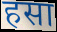
हसा